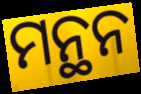
ମନ୍ଥନ